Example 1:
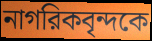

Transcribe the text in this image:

নাগরিকবৃন্দকে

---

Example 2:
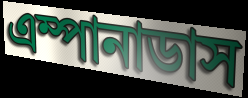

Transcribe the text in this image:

এম্পানাডাস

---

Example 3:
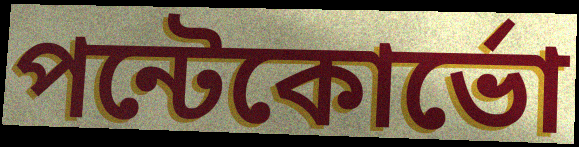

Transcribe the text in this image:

পন্টেকোর্ভো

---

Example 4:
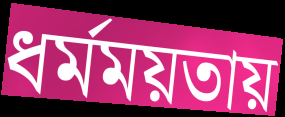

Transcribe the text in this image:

ধর্মময়তায়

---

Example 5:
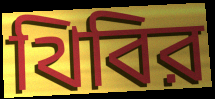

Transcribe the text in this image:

থিবির